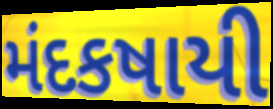
મંદકષાયી